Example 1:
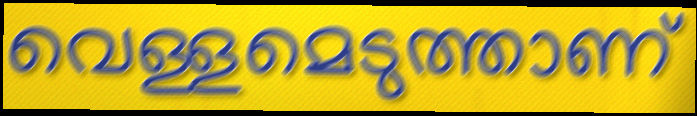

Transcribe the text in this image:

വെള്ളമെടുത്താണ്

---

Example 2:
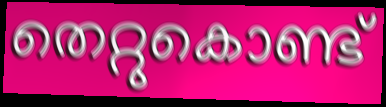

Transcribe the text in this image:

തെറ്റുകൊണ്ട്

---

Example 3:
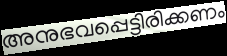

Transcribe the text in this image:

അനുഭവപ്പെട്ടിരിക്കണം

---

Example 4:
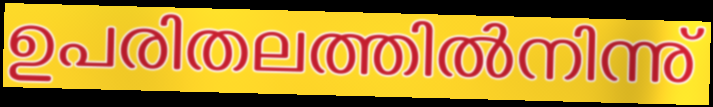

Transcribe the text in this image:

ഉപരിതലത്തിൽനിന്നു്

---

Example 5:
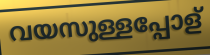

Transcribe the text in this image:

വയസുള്ളപ്പോള്